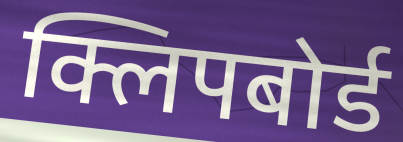
क्लिपबोर्ड